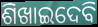
ଶିଖାଇଦେବି